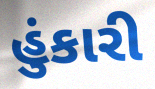
હુંકારી